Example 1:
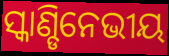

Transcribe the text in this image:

ସ୍କାଣ୍ଡିନେଭୀୟ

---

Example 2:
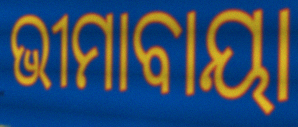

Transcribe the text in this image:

ଭୀମାବାୟା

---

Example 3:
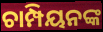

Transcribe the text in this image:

ଚାମ୍ପିୟନଙ୍କ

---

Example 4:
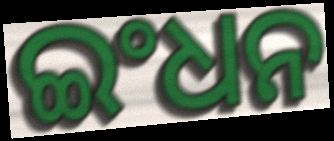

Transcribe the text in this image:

ଇଂଧନ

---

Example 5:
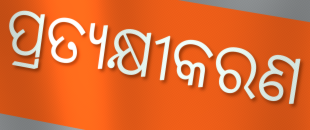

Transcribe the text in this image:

ପ୍ରତ୍ୟକ୍ଷୀକରଣ